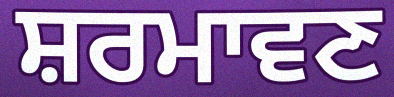
ਸ਼ਰਮਾਵਣ